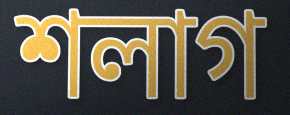
শলাগ